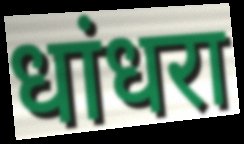
धांधरा